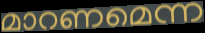
മാറണമെന്ന